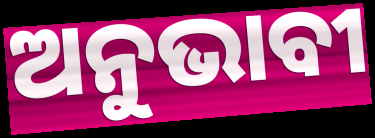
ଅନୁଭାବୀ